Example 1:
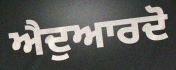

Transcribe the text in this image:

ਐਦੁਆਰਦੋ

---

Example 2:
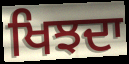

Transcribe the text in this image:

ਖਿਝਦਾ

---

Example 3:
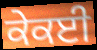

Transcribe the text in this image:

ਕੇਕਈ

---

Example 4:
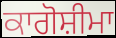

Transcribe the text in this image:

ਕਾਗੋਸ਼ੀਮਾ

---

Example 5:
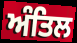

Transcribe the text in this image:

ਅੰਤਿਲ